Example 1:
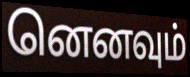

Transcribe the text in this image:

னெனவும்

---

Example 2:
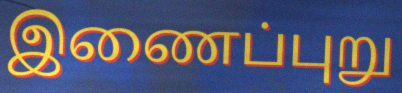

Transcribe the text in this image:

இணைப்புறு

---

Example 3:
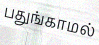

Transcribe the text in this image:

பதுங்காமல்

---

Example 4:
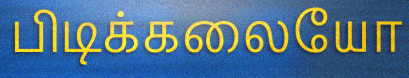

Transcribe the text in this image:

பிடிக்கலையோ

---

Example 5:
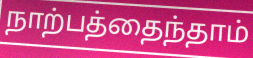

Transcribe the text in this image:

நாற்பத்தைந்தாம்